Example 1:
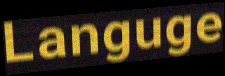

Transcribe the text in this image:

Languge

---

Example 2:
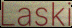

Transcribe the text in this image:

Laski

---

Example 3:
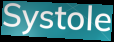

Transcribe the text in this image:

Systole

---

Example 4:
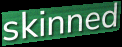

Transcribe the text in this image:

skinned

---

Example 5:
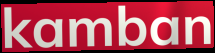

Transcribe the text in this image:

kamban